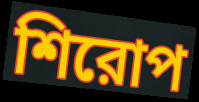
শিরোপ